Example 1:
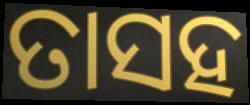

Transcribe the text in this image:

ତାସହ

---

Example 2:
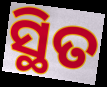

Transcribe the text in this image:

ସ୍ଥିତ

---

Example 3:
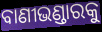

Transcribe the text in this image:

ବାଣୀଭଣ୍ଡାରକୁ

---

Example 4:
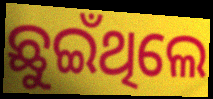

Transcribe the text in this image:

ଛୁଇଁଥିଲେ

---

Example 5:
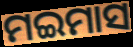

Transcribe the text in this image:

ମଇମାସ